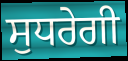
ਸੁਧਰੇਗੀ